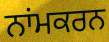
ਨਾਂਮਕਰਨ